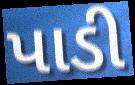
પાડી